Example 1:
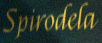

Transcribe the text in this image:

Spirodela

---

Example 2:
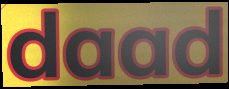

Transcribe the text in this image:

daad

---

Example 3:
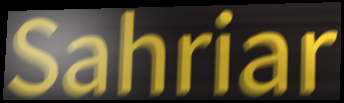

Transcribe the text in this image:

Sahriar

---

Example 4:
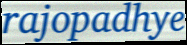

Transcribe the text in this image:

rajopadhye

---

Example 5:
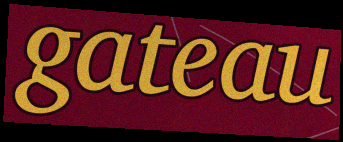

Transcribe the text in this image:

gateau